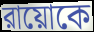
রায়োকে